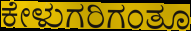
ಕೇಳುಗರಿಗಂತೂ